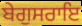
ਬੇਗੁਸਰਾਇ